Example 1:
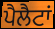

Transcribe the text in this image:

ਪੈਲੈਟਾਂ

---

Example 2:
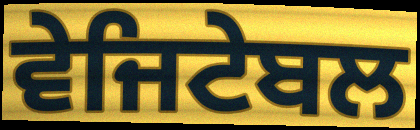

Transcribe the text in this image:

ਵੇਜਿਟੇਬਲ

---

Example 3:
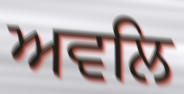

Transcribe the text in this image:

ਅਵਲਿ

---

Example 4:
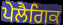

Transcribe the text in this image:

ਪੇਲੈਗਿਕ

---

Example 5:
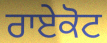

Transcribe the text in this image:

ਰਾਏਕੋਟ